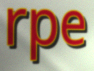
rpe